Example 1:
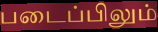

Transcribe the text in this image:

படைப்பிலும்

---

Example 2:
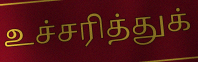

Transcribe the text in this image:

உச்சரித்துக்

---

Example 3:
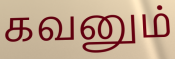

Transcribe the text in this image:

கவனும்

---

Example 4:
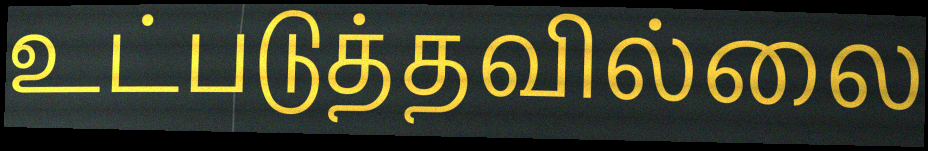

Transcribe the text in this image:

உட்படுத்தவில்லை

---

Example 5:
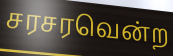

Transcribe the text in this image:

சரசரவென்ற